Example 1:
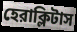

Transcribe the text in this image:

হেরাক্লিটাস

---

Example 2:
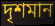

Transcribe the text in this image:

দৃশমান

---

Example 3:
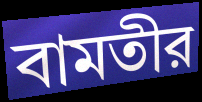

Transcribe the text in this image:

বামতীর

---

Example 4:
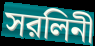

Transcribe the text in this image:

সরলিনী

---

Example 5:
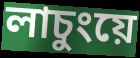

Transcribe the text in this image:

লাচুংয়ে